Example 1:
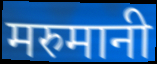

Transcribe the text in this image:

मरुमानी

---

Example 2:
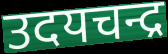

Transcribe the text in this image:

उदयचन्द्र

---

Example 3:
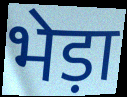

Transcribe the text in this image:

भेड़ा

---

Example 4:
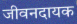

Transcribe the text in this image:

जीवनदायक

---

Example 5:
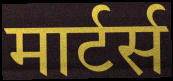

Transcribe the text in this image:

मार्टर्स